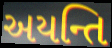
અયન્તિ